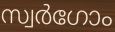
സ്വർഗോം